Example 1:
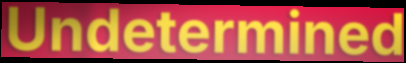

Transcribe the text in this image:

Undetermined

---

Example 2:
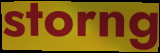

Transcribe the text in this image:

storng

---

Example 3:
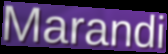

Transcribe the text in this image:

Marandi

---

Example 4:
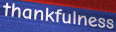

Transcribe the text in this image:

thankfulness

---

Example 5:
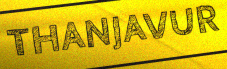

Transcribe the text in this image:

THANJAVUR